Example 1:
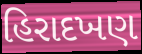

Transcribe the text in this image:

હિરાદખણ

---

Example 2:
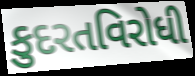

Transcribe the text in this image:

કુદરતવિરોધી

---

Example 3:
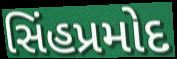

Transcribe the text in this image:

સિંહપ્રમોદ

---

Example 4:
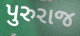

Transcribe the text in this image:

પુરુરાજ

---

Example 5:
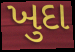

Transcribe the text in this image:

ખુદા